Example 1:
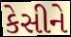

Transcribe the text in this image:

કેસીને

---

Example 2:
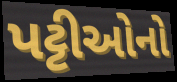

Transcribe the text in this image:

પટ્ટીઓનો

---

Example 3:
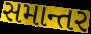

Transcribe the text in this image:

સમાન્તર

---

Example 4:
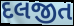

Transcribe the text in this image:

દલજીત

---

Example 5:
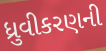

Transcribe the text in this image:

ધ્રુવીકરણની